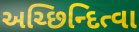
અચ્છિન્દિત્વા